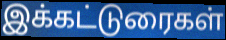
இக்கட்டுரைகள்